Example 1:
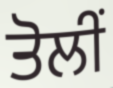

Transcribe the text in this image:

ਤੋਲੀਂ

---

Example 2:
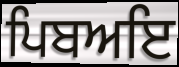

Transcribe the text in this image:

ਪਿਬਅਇ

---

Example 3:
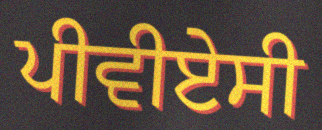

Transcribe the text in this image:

ਪੀਵੀਏਸੀ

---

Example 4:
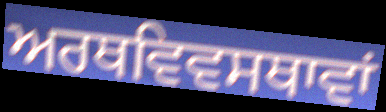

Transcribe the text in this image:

ਅਰਥਵਿਵਸਥਾਵਾਂ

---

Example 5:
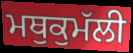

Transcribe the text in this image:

ਮਥੁਕੁਮੱਲੀ